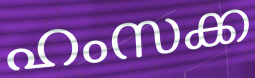
ഹംസക്ക